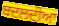
ਬਦਲਦੀਆ